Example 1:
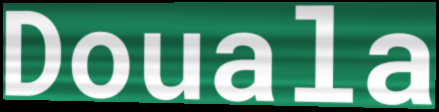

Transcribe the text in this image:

Douala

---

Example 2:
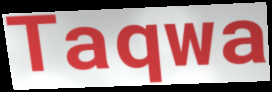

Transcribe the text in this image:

Taqwa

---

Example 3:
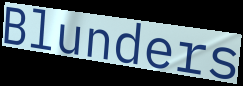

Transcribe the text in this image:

Blunders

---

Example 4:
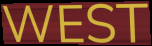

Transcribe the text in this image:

WEST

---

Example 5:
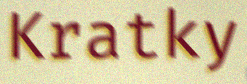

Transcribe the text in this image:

Kratky